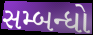
સમ્બન્ધો